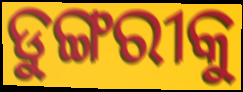
ଡୁଙ୍ଗରୀକୁ